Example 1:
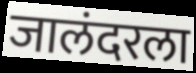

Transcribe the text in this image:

जालंदरला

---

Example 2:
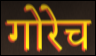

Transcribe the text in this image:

गोरेच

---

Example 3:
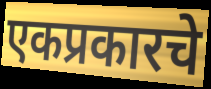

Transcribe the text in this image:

एकप्रकारचे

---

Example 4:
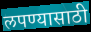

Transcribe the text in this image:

लपण्यासाठी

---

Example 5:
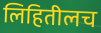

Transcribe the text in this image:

लिहितीलच